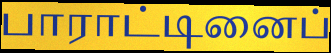
பாராட்டினைப்